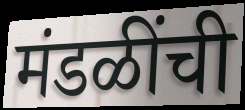
मंडळींची